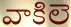
వాకిలె